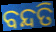
ବନ୍ଦତି